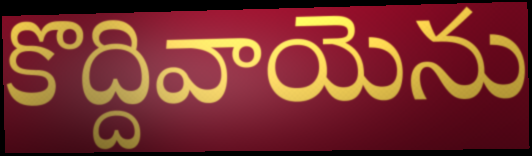
కొద్దివాయెను